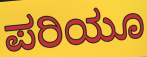
ಪರಿಯೂ